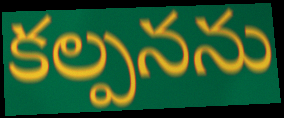
కల్పనను